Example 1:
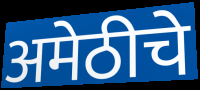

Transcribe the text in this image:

अमेठीचे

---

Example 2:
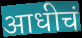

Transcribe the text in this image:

आधीचं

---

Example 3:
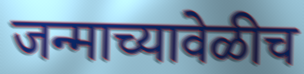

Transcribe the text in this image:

जन्माच्यावेळीच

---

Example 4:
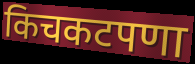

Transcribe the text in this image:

किचकटपणा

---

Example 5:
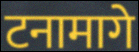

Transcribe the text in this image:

टनामागे